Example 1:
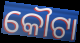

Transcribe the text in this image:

କୌଟା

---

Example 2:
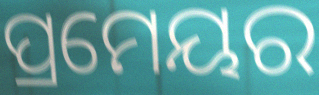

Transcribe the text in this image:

ପ୍ରମେୟର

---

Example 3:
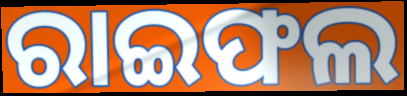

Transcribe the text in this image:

ରାଇଫଲ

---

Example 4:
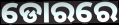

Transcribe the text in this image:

ଡୋରରେ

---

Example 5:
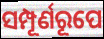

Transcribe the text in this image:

ସମ୍ପୂର୍ଣରୂପେ